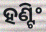
ହଣ୍ଟିଂ